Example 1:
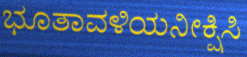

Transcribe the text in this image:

ಭೂತಾವಳಿಯನೀಕ್ಷಿಸಿ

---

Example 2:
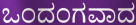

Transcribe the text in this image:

ಒಂದಂಗವಾದ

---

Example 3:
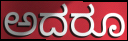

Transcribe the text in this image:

ಅದರೂ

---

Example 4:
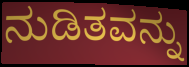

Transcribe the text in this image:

ನುಡಿತವನ್ನು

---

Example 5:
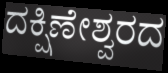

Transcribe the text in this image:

ದಕ್ಷಿಣೇಶ್ವರದ